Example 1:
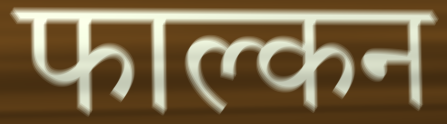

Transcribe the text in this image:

फाल्कन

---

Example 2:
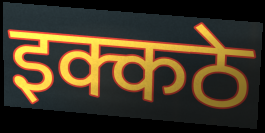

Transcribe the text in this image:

इक्कठे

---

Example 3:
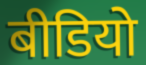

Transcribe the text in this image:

बीडियो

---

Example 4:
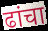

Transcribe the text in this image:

ढांचा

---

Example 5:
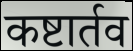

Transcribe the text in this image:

कष्टार्तव